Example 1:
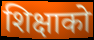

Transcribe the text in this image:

शिक्षाको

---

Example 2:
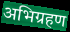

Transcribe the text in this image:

अभिग्रहण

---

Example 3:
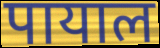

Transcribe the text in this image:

पायाल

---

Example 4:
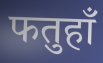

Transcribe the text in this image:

फतुहाँ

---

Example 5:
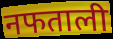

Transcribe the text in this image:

नफताली